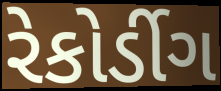
રેકોર્ડીગ